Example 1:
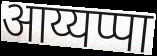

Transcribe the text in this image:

आय्यप्पा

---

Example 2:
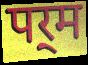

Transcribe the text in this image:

पर्म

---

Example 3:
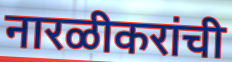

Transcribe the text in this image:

नारळीकरांची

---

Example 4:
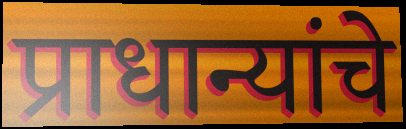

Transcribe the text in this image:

प्राधान्यांचे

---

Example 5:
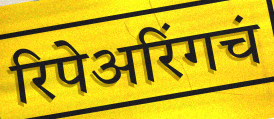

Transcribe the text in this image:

रिपेअरिंगचं